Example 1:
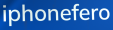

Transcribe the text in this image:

iphonefero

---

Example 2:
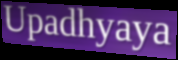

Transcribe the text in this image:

Upadhyaya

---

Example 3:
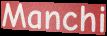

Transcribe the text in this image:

Manchi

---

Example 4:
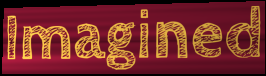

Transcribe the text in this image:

Imagined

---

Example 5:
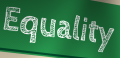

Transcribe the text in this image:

Equality